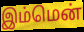
இம்மென்